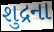
શુદ્રના